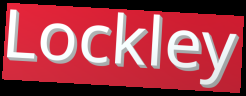
Lockley